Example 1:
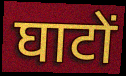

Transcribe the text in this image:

घाटों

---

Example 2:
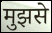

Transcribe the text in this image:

मुझसे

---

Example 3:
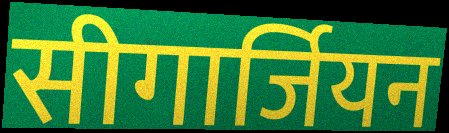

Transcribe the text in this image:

सीगार्जियन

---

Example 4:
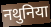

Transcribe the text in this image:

नथुनिया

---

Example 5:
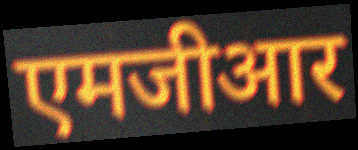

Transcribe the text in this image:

एमजीआर